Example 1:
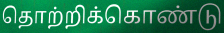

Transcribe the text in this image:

தொற்றிக்கொண்டு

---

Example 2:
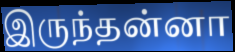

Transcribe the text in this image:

இருந்தன்னா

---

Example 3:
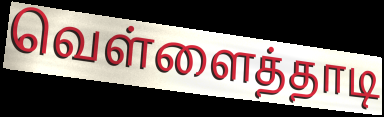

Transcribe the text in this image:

வெள்ளைத்தாடி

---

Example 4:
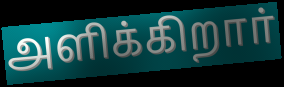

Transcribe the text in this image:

அளிக்கிறார்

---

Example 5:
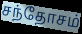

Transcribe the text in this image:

சந்தோசம்